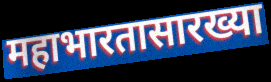
महाभारतासारख्या